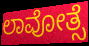
ಲಾವೋತ್ಸೆ